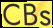
CBs